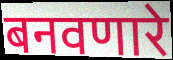
बनवणारे